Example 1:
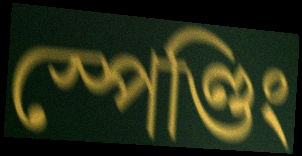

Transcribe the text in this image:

স্পেণ্ডিং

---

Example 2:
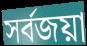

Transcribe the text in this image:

সৰ্বজয়া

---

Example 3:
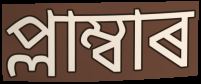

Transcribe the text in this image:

প্লাম্বাৰ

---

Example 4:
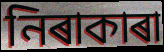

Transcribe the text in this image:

নিৰাকাৰা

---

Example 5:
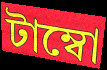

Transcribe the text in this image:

টাম্বো